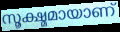
സൂക്ഷ്മമായാണ്